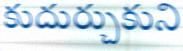
కుదుర్చుకుని